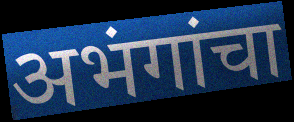
अभंगांचा